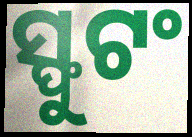
ସ୍ଫୁଟଂ